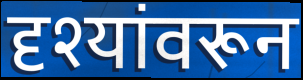
दृश्यांवरून